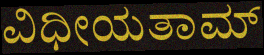
ವಿಧೀಯತಾಮ್